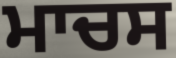
ਮਾਚਸ